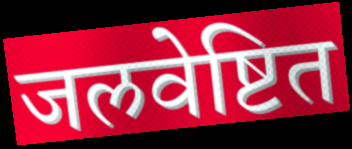
जलवेष्टित